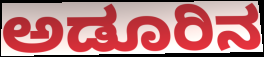
ಅಡೂರಿನ